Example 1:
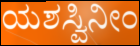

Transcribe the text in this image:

ಯಶಸ್ವಿನೀಂ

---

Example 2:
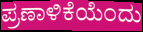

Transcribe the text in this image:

ಪ್ರಣಾಳಿಕೆಯೆಂದು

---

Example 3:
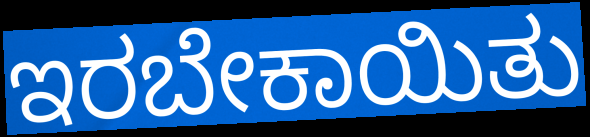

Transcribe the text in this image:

ಇರಬೇಕಾಯಿತು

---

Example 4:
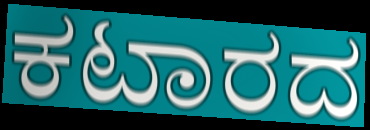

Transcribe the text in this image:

ಕಟಾರದ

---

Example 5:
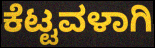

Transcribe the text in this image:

ಕೆಟ್ಟವಳಾಗಿ